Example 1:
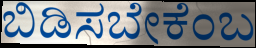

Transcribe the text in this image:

ಬಿಡಿಸಬೇಕೆಂಬ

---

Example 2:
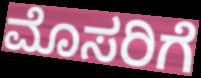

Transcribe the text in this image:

ಮೊಸರಿಗೆ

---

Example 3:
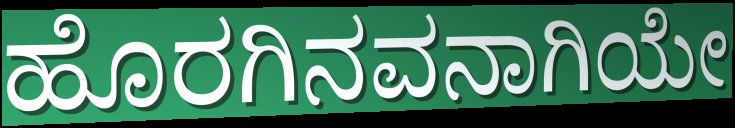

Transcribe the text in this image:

ಹೊರಗಿನವನಾಗಿಯೇ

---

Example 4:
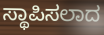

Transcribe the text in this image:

ಸ್ಥಾಪಿಸಲಾದ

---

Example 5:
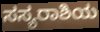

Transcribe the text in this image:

ಸಸ್ಯರಾಶಿಯ